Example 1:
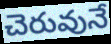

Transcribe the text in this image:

చెరువునే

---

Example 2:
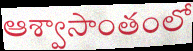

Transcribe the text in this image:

ఆశ్వాసాంతంలో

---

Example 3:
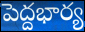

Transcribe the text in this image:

పెద్దభార్య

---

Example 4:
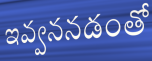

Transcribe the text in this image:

ఇవ్వననడంతో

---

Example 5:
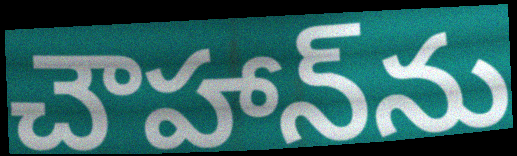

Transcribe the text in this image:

చౌహాన్‌ను